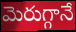
మెరుగ్గానే